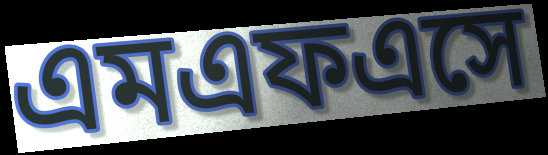
এমএফএসে